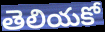
తెలియకో